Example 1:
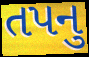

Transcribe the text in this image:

તપનુ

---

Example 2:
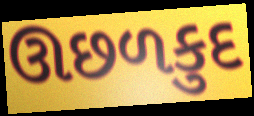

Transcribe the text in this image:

ઊછળકુદ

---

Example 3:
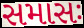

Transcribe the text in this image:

સમાસઃ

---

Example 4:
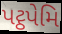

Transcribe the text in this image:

પટ્ઠપેમિ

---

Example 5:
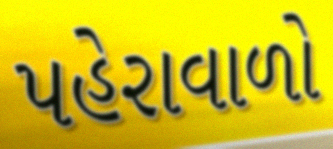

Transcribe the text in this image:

પહેરાવાળો